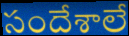
సందేశాలే